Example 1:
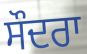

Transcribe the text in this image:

ਸੌਦਰਾ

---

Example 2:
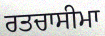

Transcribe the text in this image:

ਰਤਚਾਸੀਮਾ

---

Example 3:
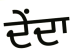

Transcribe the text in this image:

ਦੇਂਦਾ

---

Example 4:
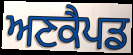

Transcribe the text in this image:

ਅਣਕੈਪਡ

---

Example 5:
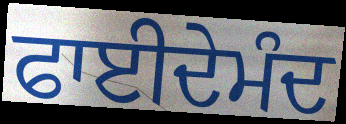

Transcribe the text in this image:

ਫਾਈਦੇਮੰਦ